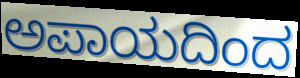
ಅಪಾಯದಿಂದ